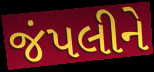
જંપલીને